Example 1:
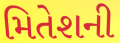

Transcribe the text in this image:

મિતેશની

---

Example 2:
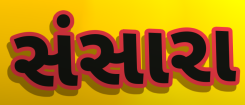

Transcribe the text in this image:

સંસારા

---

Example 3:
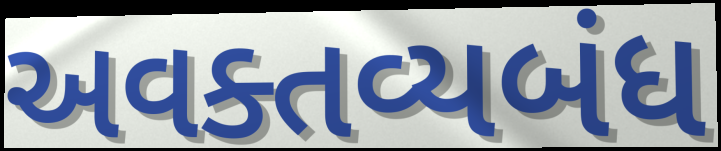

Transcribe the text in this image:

અવક્તવ્યબંધ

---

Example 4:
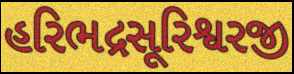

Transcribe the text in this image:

હરિભદ્રસૂરિશ્વરજી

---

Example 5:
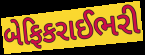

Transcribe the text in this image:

બેફિકરાઈભરી